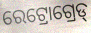
ରେଟ୍ରୋଗ୍ରେଡ୍